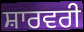
ਸ਼ਾਰਵਰੀ